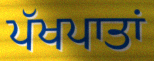
ਪੱਖਪਾਤਾਂ